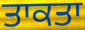
ਤਾਕਤਾ